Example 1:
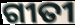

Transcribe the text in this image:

ଗୀତୀ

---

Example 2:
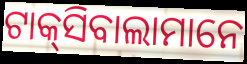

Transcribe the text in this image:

ଟାକ୍‌ସିବାଲାମାନେ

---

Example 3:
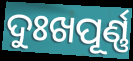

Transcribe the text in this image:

ଦୁଃଖପୂର୍ଣ୍ଣ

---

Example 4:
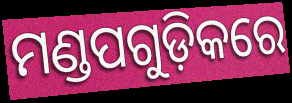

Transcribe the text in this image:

ମଣ୍ଡପଗୁଡ଼ିକରେ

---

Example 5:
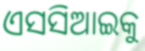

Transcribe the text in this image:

ଏସସିଆଇକୁ